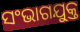
ସଂଭାଗଯୁକ୍ତ